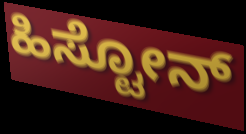
ಹಿಸ್ಟೋನ್